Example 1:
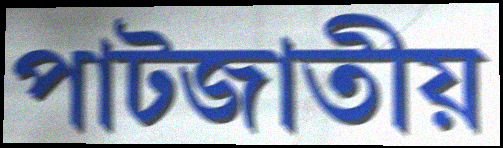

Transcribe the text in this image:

পাটজাতীয়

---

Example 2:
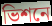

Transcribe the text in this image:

ভিশনে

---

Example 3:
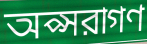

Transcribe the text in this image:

অপ্সরাগণ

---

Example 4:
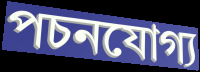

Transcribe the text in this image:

পচনযোগ্য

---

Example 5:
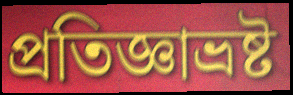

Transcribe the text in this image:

প্রতিজ্ঞাভ্রষ্ট